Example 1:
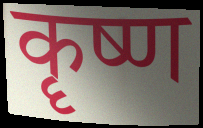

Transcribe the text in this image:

कॄष्ण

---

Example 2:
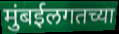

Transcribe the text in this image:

मुंबईलगतच्या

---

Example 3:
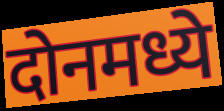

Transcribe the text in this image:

दोनमध्ये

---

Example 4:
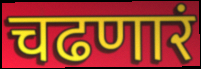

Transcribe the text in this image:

चढणारं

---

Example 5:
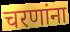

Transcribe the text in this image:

चरणांना